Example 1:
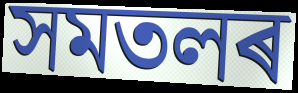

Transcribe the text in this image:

সমতলৰ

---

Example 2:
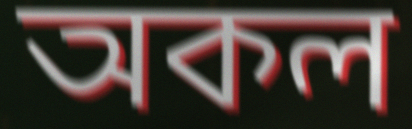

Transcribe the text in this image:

অকল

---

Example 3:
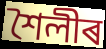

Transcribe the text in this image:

শৈলীৰ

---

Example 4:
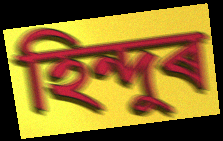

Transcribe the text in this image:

হিন্দুৰ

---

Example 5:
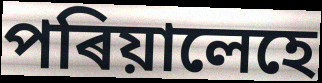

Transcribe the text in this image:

পৰিয়ালেহে